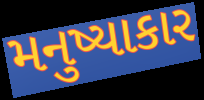
મનુષ્યાકાર